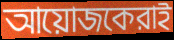
আয়োজকেরাই